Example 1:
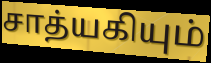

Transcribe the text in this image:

சாத்யகியும்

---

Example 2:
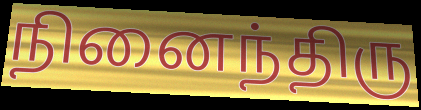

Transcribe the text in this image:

நினைந்திரு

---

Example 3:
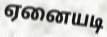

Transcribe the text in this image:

ஏனையடி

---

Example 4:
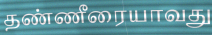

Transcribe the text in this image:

தண்ணீரையாவது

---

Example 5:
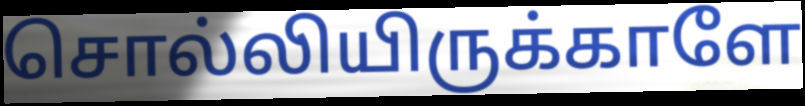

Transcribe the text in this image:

சொல்லியிருக்காளே